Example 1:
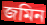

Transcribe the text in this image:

জমিন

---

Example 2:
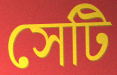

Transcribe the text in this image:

সেটি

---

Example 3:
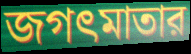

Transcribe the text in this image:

জগৎমাতার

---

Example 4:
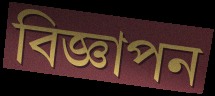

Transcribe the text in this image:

বিজ্ঞাপন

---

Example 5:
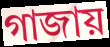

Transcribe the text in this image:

গাজায়